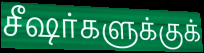
சீஷர்களுக்குக்